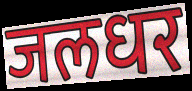
जलधर